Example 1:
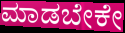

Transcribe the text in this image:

ಮಾಡಬೇಕೇ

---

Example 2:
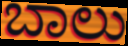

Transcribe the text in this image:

ಬಾಲು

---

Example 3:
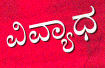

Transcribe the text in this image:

ವಿವ್ಯಾಧ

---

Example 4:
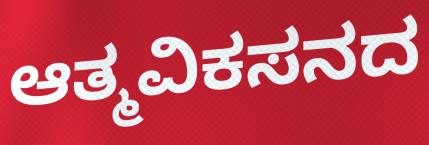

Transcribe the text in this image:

ಆತ್ಮವಿಕಸನದ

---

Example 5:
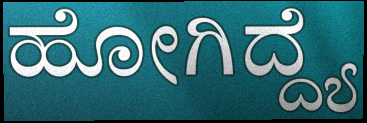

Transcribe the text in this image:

ಹೋಗಿದ್ದ್ಯೆ